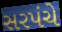
સરપંચે